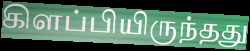
கிளப்பியிருந்தது